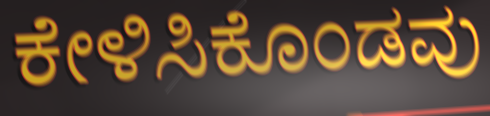
ಕೇಳಿಸಿಕೊಂಡವು